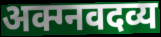
अक्ग्नवदव्य